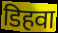
डिहवा